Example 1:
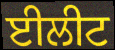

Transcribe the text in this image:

ਈਲੀਟ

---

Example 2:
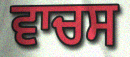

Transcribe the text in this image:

ਵਾਚਸ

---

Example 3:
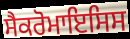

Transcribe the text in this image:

ਸੈਕਰੋਮਾਇਸਿਸ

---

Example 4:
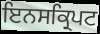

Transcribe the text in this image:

ਇਨਸਕ੍ਰਿਪਟ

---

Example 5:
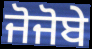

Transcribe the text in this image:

ਜੋਜੋਬੇ